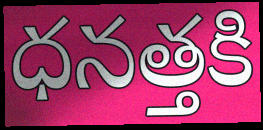
ధనత్తకి